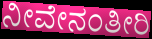
ನೀವೇನಂತೀರಿ